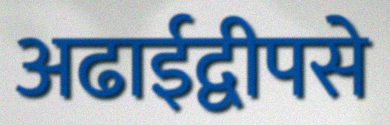
अढाईद्वीपसे